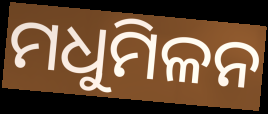
ମଧୁମିଳନ